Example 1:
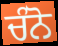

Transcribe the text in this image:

ਚੰਨੋ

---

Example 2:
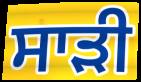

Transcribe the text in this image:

ਸਾੜੀ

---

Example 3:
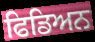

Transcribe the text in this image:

ਫਿਡਿਅਨ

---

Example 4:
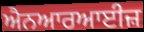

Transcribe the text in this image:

ਐਨਆਰਆਈਜ਼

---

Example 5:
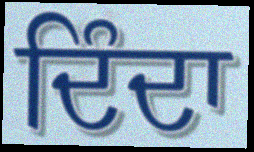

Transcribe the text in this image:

ਦਿੰਦਾ